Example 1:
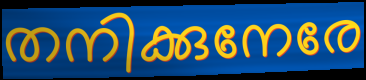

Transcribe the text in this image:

തനിക്കുനേരേ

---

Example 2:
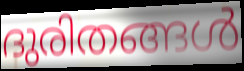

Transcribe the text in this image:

ദുരിതങ്ങൾ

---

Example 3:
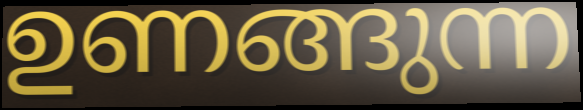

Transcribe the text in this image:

ഉണങ്ങുന്ന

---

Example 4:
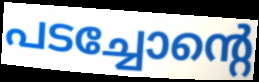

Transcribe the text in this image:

പടച്ചോന്റെ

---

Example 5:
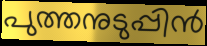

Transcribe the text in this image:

പുത്തനുടുപ്പിൻ